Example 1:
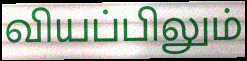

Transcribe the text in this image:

வியப்பிலும்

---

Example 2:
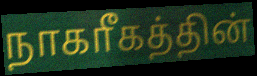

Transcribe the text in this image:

நாகரீகத்தின்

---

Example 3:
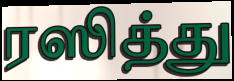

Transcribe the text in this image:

ரஸித்து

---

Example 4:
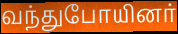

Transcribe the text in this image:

வந்துபோயினர்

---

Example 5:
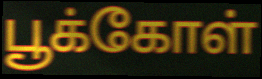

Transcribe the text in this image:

பூக்கோள்